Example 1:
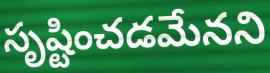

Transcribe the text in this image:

సృష్టించడమేనని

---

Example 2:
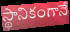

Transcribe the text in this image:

స్థానికంగానే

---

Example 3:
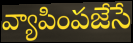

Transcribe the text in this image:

వ్యాపింపజేసే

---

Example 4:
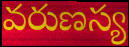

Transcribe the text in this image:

వరుణస్య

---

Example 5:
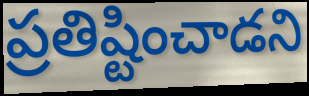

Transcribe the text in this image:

ప్రతిష్టించాడని